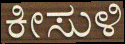
ಕೀಸುಳಿ